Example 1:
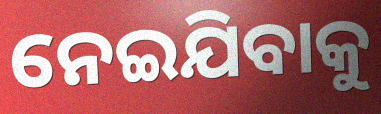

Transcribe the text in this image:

ନେଇଯିବାକୁ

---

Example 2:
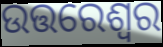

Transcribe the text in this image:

ଉତ୍ତରେଶ୍ୱର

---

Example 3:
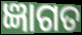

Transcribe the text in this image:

ଜ୍ଞାଗତ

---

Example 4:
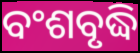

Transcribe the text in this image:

ବଂଶବୃଦ୍ଧି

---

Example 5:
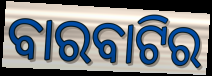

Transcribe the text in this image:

ବାରବାଟିର